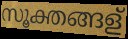
സൂക്തങ്ങള്